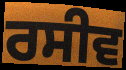
ਰਸੀਵ